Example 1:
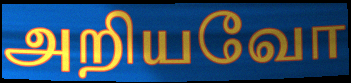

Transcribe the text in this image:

அறியவோ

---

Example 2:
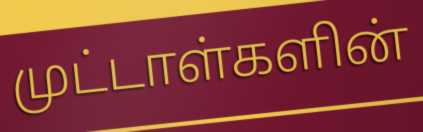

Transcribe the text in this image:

முட்டாள்களின்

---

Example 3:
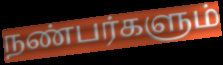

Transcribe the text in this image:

நண்பர்களும்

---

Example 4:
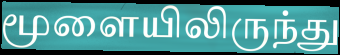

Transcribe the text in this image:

மூளையிலிருந்து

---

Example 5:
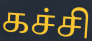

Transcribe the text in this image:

கச்சி